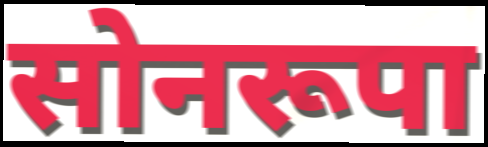
सोनरूपा